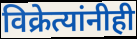
विक्रेत्यांनीही